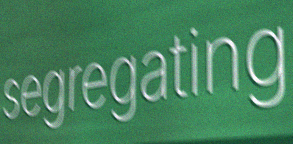
segregating